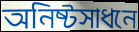
অনিষ্টসাধনে